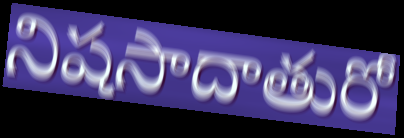
నిషసాదాతురో